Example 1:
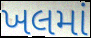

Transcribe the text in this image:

ખલમાં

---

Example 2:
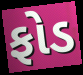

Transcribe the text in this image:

ફોડ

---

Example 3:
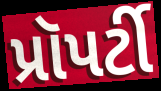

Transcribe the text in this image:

પ્રૉપર્ટી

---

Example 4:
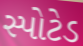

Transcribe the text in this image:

સ્પોટેડ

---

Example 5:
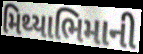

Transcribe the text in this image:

મિથ્યાભિમાની